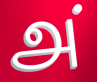
அ்